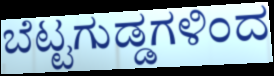
ಬೆಟ್ಟಗುಡ್ಡಗಳಿಂದ